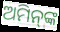
ଅମିନ୍‌ଙ୍କ